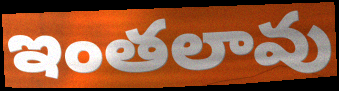
ఇంతలావు